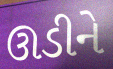
ઊડીને